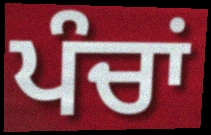
ਪੰਚਾਂ